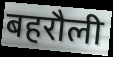
बहरौली